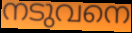
നടുവനെ